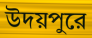
উদয়পুরে